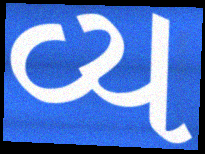
વ્ય